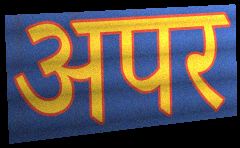
अपर